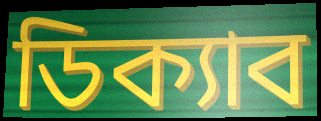
ডিক্যাব